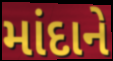
માંદાને